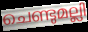
ചെണ്ടുമല്ലി